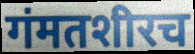
गंमतशीरच